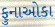
ફુનાઓકા